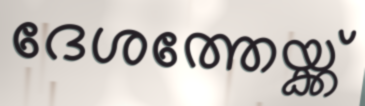
ദേശത്തേയ്ക്ക്